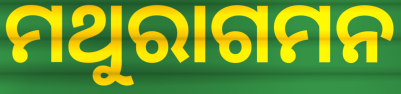
ମଥୁରାଗମନ